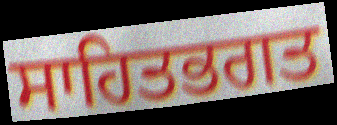
ਸਾਹਿਤਭਗਤ